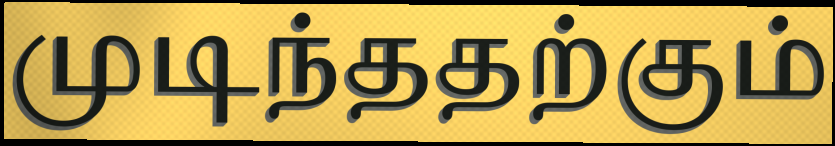
முடிந்ததற்கும்